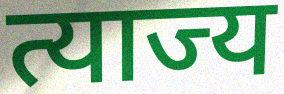
त्याज्य